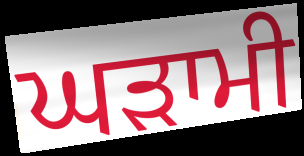
ਘੜਾਮੀ